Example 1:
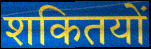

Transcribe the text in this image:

शकितयों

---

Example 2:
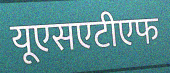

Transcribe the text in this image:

यूएसएटीएफ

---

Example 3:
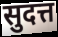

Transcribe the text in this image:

सुदत्त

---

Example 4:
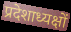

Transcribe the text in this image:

प्रदेशाध्यक्षों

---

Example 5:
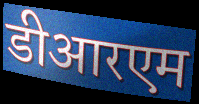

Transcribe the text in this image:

डीआरएम